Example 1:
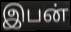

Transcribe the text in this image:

இபன்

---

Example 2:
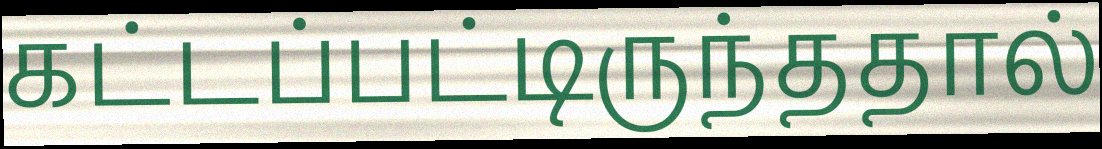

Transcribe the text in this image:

கட்டப்பட்டிருந்ததால்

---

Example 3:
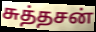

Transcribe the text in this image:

சுத்தசன்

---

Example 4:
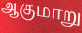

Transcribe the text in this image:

ஆகுமாறு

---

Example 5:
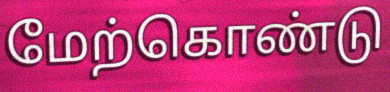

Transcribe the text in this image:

மேற்கொண்டு